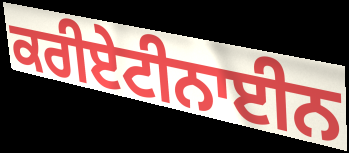
ਕਰੀਏਟੀਨਾਈਨ